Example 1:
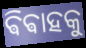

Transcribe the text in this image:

ଵିଵାହକୁ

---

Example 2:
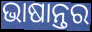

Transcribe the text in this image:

ଭାଷାନ୍ତର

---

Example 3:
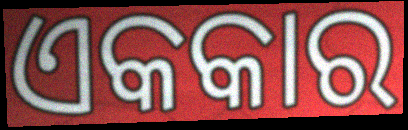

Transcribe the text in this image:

ଏକକାର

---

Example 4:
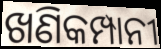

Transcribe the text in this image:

ଖଣିକମ୍ପାନୀ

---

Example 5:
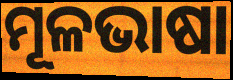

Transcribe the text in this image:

ମୂଳଭାଷା